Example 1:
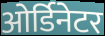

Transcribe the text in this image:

ओर्डिनेटर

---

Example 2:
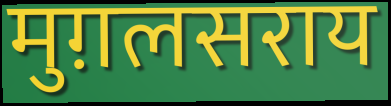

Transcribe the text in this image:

मुग़लसराय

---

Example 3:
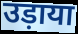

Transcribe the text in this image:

उड़ाया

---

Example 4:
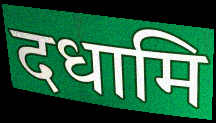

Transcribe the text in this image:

दधामि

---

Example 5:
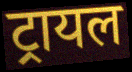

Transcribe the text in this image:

ट्रायल